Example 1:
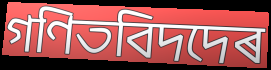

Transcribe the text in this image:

গণিতবিদদেৰ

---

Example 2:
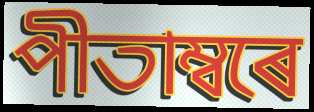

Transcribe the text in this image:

পীতাম্বৰে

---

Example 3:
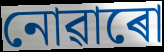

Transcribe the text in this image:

নোৱাৰো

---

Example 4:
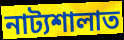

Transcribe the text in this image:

নাট্যশালাত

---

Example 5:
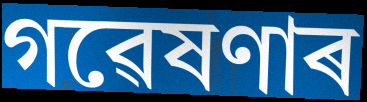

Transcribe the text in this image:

গৱেষণাৰ